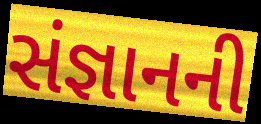
સંજ્ઞાનની